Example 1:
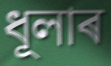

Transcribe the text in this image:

ধূলাৰ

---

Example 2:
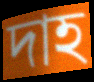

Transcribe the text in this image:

দাহ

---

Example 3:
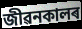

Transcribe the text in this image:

জীৱনকালৰ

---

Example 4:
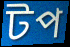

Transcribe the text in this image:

টপ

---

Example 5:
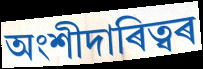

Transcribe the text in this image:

অংশীদাৰিত্বৰ